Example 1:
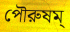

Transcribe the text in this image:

পৌরুষম্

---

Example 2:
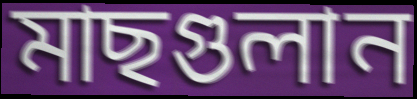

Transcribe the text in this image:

মাছগুলান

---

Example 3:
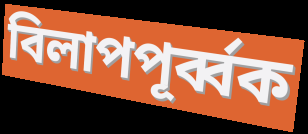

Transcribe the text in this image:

বিলাপপূর্ব্বক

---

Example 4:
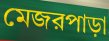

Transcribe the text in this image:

মেজরপাড়া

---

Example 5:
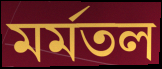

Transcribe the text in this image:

মর্মতল